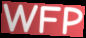
WFP